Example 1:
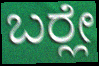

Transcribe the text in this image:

ಬರ್‍ಲೇ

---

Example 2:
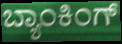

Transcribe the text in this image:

ಬ್ಯಾಂಕಿಂಗ್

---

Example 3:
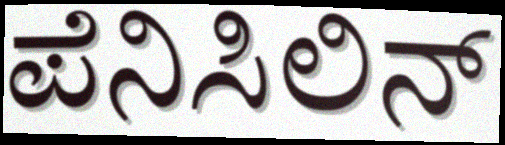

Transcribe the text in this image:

ಪೆನಿಸಿಲಿನ್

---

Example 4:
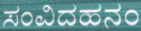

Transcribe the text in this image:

ಸಂವಿದಹನಂ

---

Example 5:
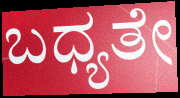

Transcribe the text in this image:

ಬಧ್ಯತೇ